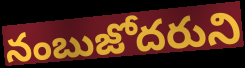
నంబుజోదరుని